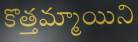
కొత్తమ్మాయిని